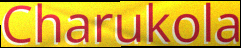
Charukola